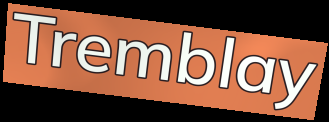
Tremblay